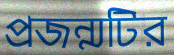
প্রজন্মটির